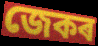
জেকৰ